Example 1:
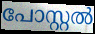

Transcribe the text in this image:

പോസ്റ്റൽ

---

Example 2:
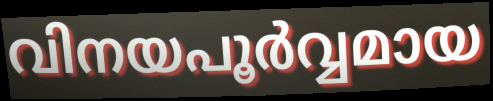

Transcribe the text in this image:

വിനയപൂർവ്വമായ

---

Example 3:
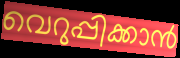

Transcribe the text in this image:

വെറുപ്പിക്കാൻ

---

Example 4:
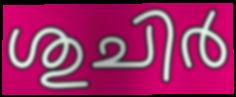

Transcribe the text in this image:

ശുചിർ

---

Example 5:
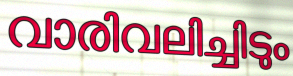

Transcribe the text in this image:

വാരിവലിച്ചിടും